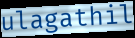
ulagathil